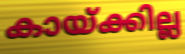
കായ്ക്കില്ല